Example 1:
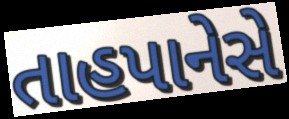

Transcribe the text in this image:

તાહપાનેસે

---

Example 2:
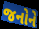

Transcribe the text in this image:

જનોને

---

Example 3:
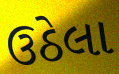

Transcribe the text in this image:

ઉઠેલા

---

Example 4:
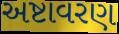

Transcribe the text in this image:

અષ્ટાવરણ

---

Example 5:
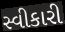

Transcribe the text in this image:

સ્વીકારી